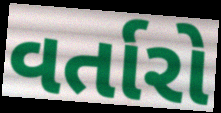
વર્તારો